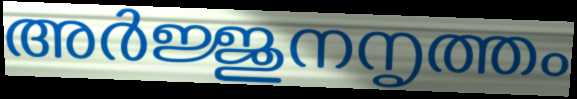
അർജ്ജുനനൃത്തം